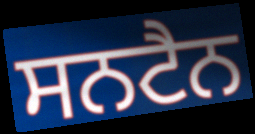
ਸਨਟੈਨ